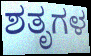
ಶತೃಗಳ